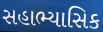
સહાભ્યાસિક